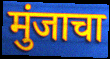
मुंजाचा